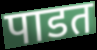
पाडत